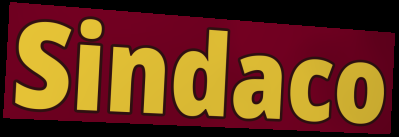
Sindaco